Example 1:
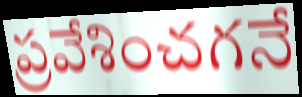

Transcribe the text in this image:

ప్రవేశించగనే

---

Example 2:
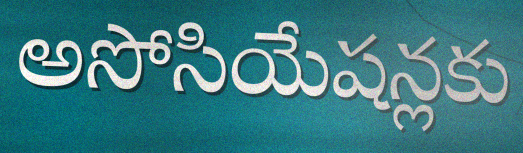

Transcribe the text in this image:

అసోసియేషన్లకు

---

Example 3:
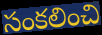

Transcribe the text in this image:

సంకలించి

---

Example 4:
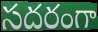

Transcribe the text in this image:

సదరంగా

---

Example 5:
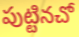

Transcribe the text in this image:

పుట్టినచో